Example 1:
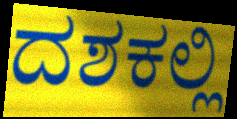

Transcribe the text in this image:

ದಶಕಲ್ಲಿ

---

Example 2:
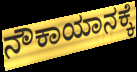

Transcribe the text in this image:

ನೌಕಾಯಾನಕ್ಕೆ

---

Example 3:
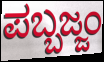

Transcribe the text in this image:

ಪಬ್ಬಜ್ಜಂ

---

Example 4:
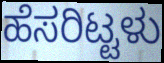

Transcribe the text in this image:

ಹೆಸರಿಟ್ಟಳು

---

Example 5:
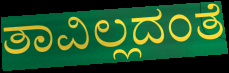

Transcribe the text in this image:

ತಾವಿಲ್ಲದಂತೆ